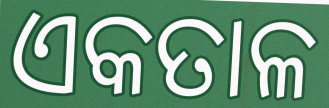
ଏକତାଳ